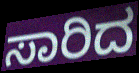
ಸಾರಿದ